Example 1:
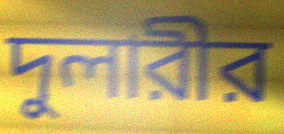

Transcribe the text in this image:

দুলারীর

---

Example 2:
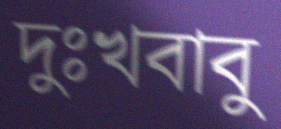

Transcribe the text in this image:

দুঃখবাবু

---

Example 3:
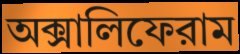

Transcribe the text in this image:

অক্সালিফেরাম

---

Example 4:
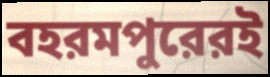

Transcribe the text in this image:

বহরমপুরেরই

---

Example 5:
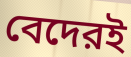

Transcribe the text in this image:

বেদেরই